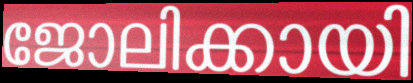
ജോലിക്കായി